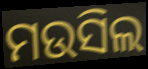
ମଉସିଲ